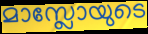
മാസ്ലോയുടെ